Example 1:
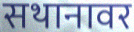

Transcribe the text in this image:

सथानावर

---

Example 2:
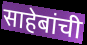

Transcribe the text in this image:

साहेबांची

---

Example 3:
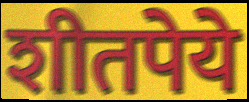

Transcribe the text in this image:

शीतपेये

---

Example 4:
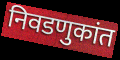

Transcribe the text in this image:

निवडणुकांत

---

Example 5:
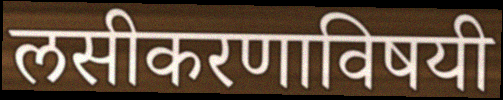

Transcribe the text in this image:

लसीकरणाविषयी